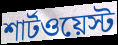
শার্টওয়েস্ট